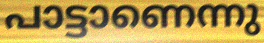
പാട്ടാണെന്നു